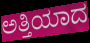
ಅತ್ತಿಯಾದ